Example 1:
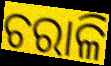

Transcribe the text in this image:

ଚରାଳି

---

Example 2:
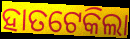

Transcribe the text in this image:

ହାତଟେକିଲା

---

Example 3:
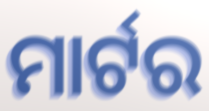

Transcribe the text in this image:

ମାର୍ଟର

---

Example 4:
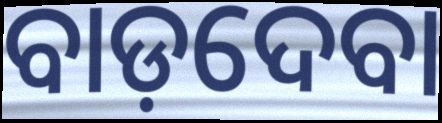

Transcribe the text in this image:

ବାଡ଼ଦେବା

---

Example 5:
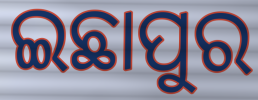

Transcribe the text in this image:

ଇଛାପୁର